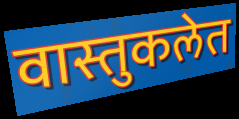
वास्तुकलेत